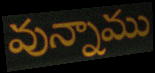
వున్నాము